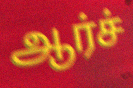
ஆர்ச்